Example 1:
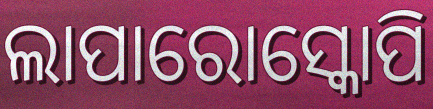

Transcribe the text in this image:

ଲାପାରୋସ୍କୋପି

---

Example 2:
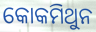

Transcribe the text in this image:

କୋକମିଥୁନ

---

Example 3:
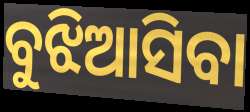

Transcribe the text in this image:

ବୁଝିଆସିବା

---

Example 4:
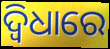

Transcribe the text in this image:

ଦ୍ୱିଧାରେ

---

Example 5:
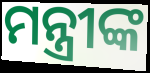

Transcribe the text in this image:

ମନ୍ତ୍ରୀଙ୍କ